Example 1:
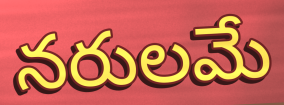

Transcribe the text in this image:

నరులమే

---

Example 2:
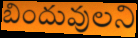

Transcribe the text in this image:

బిందువులని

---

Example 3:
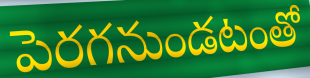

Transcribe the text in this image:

పెరగనుండటంతో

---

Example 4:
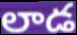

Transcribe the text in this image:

లాడ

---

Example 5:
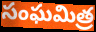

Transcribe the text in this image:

సంఘమిత్ర